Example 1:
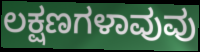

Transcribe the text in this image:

ಲಕ್ಷಣಗಳಾವುವು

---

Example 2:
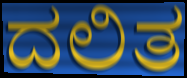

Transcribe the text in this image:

ದಲಿತ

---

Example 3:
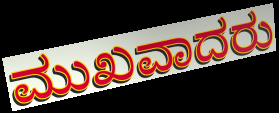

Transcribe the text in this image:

ಮುಖವಾದರು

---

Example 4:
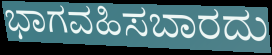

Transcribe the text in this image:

ಭಾಗವಹಿಸಬಾರದು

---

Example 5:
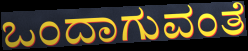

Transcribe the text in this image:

ಒಂದಾಗುವಂತೆ